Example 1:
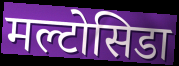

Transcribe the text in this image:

मल्टोसिडा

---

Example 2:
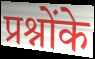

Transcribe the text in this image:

प्रश्नोंके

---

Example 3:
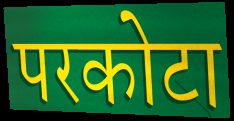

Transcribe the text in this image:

परकोटा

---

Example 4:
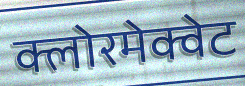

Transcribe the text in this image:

क्लोरमेक्वेट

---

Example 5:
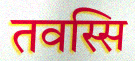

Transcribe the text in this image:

तवस्सि